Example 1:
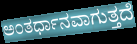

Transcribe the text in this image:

ಅಂತರ್ಧಾನವಾಗುತ್ತದೆ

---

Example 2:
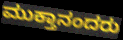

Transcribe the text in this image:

ಮುಕ್ತಾನಂದರು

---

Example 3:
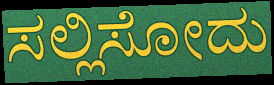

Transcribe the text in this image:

ಸಲ್ಲಿಸೋದು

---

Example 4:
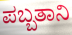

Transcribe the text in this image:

ಪಬ್ಬತಾನಿ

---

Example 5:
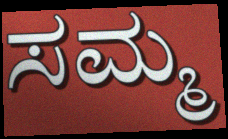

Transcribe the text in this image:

ಸಮ್ಮ